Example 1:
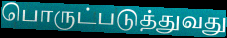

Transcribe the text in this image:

பொருட்படுத்துவது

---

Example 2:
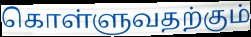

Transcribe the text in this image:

கொள்ளுவதற்கும்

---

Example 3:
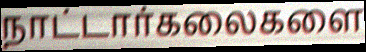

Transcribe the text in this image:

நாட்டார்கலைகளை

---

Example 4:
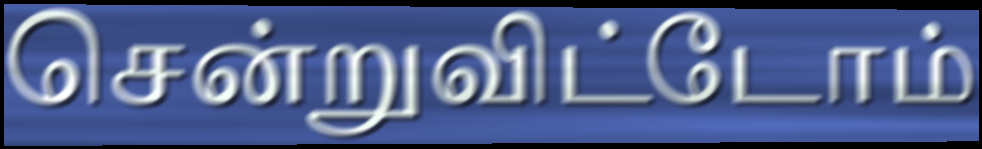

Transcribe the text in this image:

சென்றுவிட்டோம்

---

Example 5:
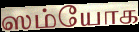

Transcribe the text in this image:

ஸம்யோக